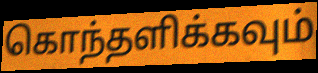
கொந்தளிக்கவும்